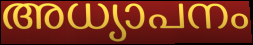
അധ്യാപനം